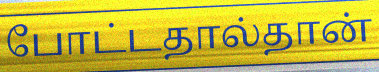
போட்டதால்தான்